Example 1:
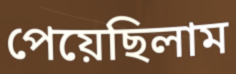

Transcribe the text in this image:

পেয়েছিলাম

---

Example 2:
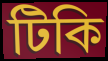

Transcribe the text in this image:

টিকি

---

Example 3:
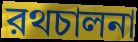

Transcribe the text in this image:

রথচালনা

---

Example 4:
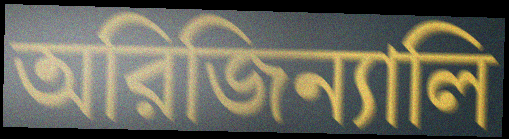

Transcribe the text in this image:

অরিজিন্যালি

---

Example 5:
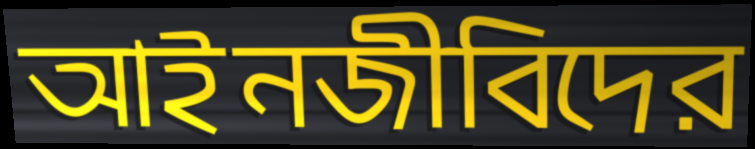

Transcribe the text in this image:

আইনজীবিদের